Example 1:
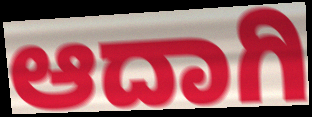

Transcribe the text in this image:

ಆದಾಗಿ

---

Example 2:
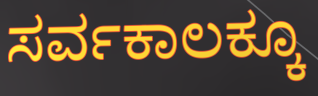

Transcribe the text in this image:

ಸರ್ವಕಾಲಕ್ಕೂ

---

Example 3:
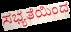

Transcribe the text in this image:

ಸಭ್ಯತೆಯಿಂದ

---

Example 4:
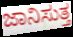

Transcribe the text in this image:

ಜಾನಿಸುತ್ತ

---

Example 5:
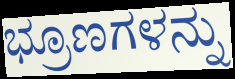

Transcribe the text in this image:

ಭ್ರೂಣಗಳನ್ನು